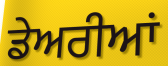
ਡੇਅਰੀਆਂ